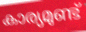
കാര്യമുണ്ട്